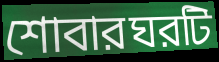
শোবারঘরটি